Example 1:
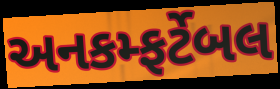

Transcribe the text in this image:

અનકમ્ફર્ટેબલ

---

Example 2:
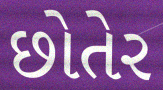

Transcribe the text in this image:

છોતેર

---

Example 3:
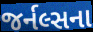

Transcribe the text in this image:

જર્નલ્સના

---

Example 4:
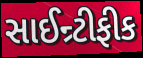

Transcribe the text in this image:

સાઈન્ર્ટીફીક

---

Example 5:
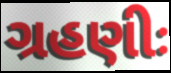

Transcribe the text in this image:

ગ્રહણીઃ